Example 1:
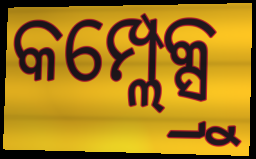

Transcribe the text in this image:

କମ୍ପ୍ଲେକ୍ସ୍ରୁ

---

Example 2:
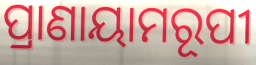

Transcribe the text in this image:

ପ୍ରାଣାୟାମରୂପୀ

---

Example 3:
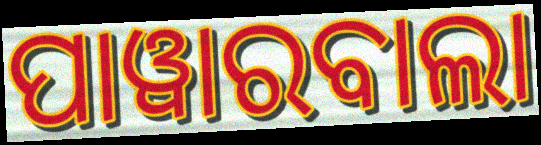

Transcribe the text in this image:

ପାୱାରବାଲା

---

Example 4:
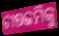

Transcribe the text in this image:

ଚାଷଜମିକୁ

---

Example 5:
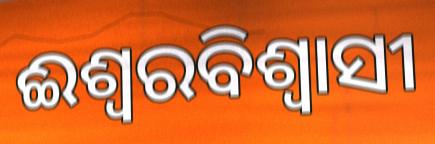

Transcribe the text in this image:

ଈଶ୍ବରବିଶ୍ବାସୀ